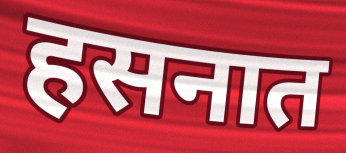
हसनात